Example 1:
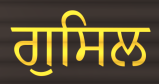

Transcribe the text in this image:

ਗੁਸਿਲ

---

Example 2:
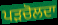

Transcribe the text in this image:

ਪੜਚੋਲਦਾ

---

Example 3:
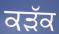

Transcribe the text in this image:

ਕੜੱਕ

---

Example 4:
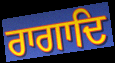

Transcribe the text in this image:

ਰਾਗਾਦਿ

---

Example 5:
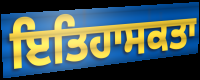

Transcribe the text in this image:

ਇਤਿਹਾਸਕਤਾ